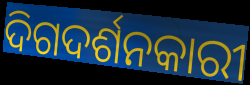
ଦିଗଦର୍ଶନକାରୀ